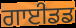
ਗਾਈਡਡ